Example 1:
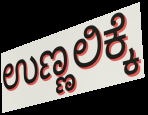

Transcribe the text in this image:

ಉಣ್ಣಲಿಕ್ಕೆ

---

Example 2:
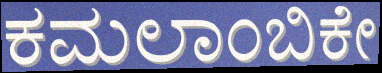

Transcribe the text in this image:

ಕಮಲಾಂಬಿಕೇ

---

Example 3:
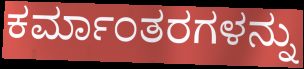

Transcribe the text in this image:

ಕರ್ಮಾಂತರಗಳನ್ನು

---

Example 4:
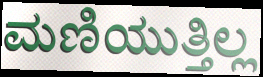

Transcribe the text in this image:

ಮಣಿಯುತ್ತಿಲ್ಲ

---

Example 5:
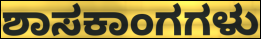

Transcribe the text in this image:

ಶಾಸಕಾಂಗಗಳು